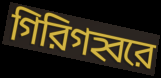
গিরিগহ্বরে